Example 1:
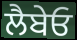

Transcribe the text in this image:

ਲੈਬੇਓ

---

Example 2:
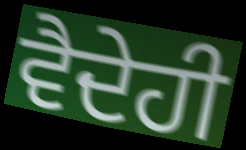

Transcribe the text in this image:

ਵੈਦੇਹੀ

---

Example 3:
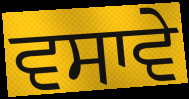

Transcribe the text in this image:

ਵਸਾਵੇ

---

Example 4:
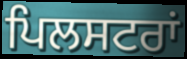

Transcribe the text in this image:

ਪਿਲਸਟਰਾਂ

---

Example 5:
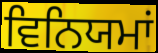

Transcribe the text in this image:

ਵਿਨਿਯਮਾਂ